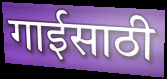
गाईसाठी